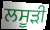
ਲਸੂੜੀ